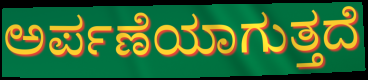
ಅರ್ಪಣೆಯಾಗುತ್ತದೆ